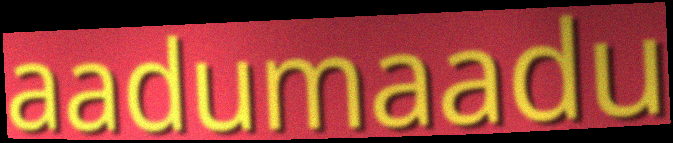
aadumaadu